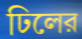
ঢিলের